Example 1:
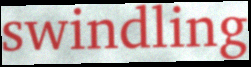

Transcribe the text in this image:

swindling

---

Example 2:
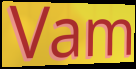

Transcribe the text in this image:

Vam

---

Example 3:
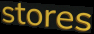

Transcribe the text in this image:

stores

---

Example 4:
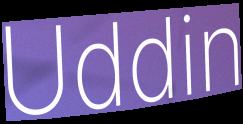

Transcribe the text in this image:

Uddin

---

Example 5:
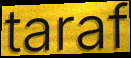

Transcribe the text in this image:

taraf